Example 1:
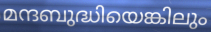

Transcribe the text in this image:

മന്ദബുദ്ധിയെങ്കിലും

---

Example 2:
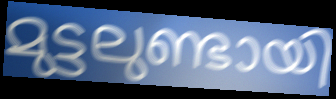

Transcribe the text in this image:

മുട്ടലുണ്ടായി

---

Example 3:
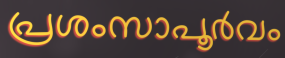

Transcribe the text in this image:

പ്രശംസാപൂർവം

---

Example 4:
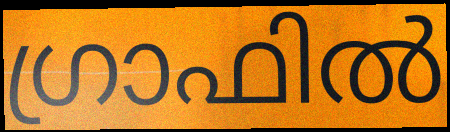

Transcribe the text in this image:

ഗ്രാഫിൽ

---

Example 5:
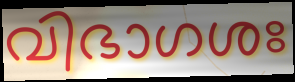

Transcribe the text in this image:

വിഭാഗശഃ